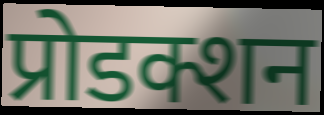
प्रोडक्शन